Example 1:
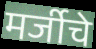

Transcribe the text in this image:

मर्जीचे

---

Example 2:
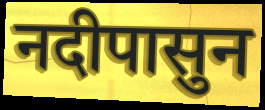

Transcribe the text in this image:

नदीपासुन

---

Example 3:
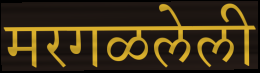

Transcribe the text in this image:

मरगळलेली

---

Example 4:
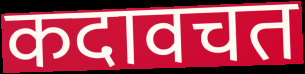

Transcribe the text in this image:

कदावचत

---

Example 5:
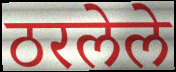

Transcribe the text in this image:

ठरलेले